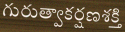
గురుత్వాకర్షణశక్తి